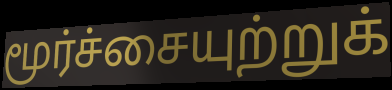
மூர்ச்சையுற்றுக்